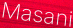
Masani